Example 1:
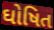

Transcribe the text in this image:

ઘોષિત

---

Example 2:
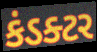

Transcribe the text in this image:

કંડક્ટર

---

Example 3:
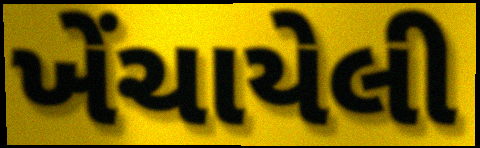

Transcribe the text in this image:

ખેંચાયેલી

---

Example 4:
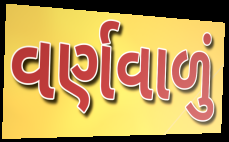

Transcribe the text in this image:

વર્ણવાળું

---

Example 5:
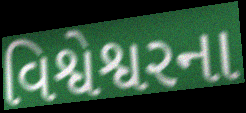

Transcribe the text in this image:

વિશ્વેશ્વરના